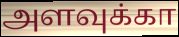
அளவுக்கா